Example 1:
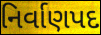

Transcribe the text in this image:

નિર્વાણપદ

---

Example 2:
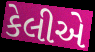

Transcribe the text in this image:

કેલીએ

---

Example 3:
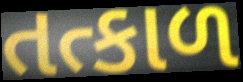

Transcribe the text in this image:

તત્કાળ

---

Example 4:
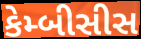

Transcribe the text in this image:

કેમ્બીસીસ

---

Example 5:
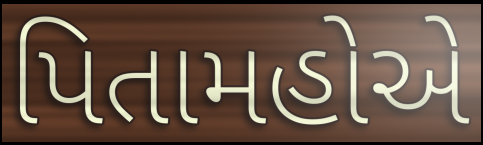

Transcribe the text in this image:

પિતામહોએ